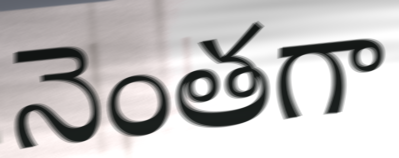
నెంతగా